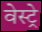
वेस्ट्रे